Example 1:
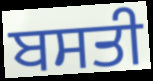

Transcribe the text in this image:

ਬਸਤੀ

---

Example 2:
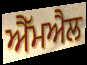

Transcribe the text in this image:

ਐੱਮਐਲ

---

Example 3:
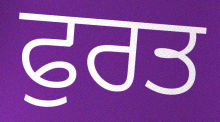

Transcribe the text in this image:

ਫੁਰਤ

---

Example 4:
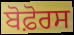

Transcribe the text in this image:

ਬੋਫ਼ੋਰਸ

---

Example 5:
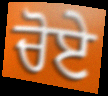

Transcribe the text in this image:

ਚੋਏ